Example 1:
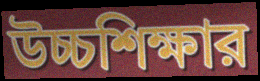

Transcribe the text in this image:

উচ্চশিক্ষার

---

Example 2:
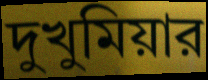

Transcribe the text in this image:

দুখুমিয়ার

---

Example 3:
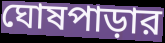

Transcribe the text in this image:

ঘোষপাড়ার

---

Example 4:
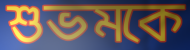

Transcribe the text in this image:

শুভমকে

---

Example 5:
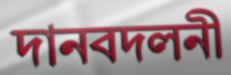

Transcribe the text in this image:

দানবদলনী